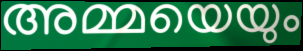
അമ്മയെയും